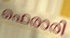
ഫെരാരി